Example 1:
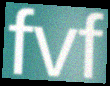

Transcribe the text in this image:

fvf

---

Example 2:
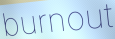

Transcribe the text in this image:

burnout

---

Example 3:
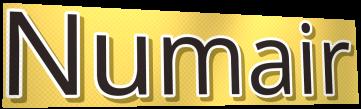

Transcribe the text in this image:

Numair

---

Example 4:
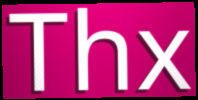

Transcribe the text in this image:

Thx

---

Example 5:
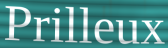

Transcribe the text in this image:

Prilleux